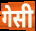
गेसी